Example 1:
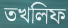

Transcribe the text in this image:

তখলিফ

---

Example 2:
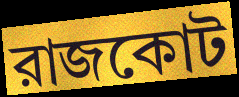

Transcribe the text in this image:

রাজকোট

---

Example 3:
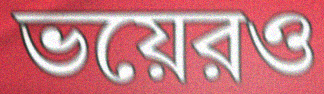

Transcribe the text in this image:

ভয়েরও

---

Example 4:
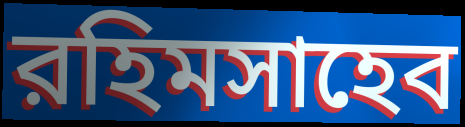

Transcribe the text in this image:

রহিমসাহেব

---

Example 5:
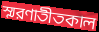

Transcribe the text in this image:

স্মরণাতীতকাল